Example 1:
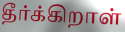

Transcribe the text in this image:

தீர்க்கிறாள்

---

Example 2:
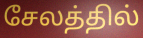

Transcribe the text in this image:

சேலத்தில்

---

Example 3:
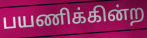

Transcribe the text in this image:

பயணிக்கின்ற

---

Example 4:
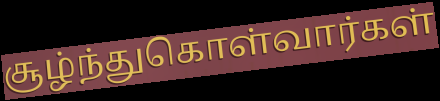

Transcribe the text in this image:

சூழ்ந்துகொள்வார்கள்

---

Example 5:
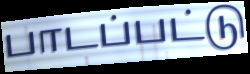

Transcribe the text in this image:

பாடப்பட்டு